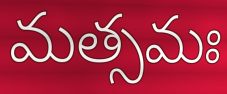
మత్సమః